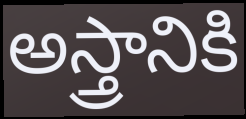
అస్త్రానికి